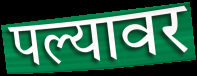
पल्यावर